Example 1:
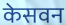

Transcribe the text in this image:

केसवन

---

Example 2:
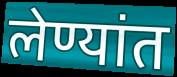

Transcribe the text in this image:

लेण्यांत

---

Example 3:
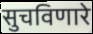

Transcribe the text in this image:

सुचविणारे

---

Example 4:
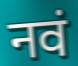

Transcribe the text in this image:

नवं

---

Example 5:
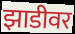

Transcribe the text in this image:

झाडीवर